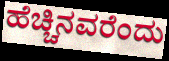
ಹೆಚ್ಚಿನವರೆಂದು